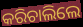
କରିଚାଲିଲେ